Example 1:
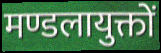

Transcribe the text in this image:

मण्डलायुक्तों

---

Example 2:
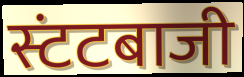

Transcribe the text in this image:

स्टंटबाजी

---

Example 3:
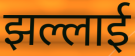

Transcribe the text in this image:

झल्लाई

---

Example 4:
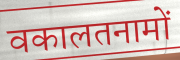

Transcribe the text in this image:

वकालतनामों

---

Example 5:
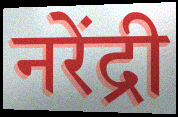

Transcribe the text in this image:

नरेंद्री